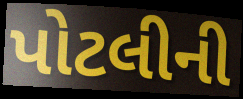
પોટલીની